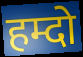
हम्दो